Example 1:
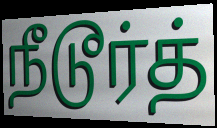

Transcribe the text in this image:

நீடூர்த்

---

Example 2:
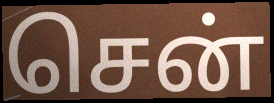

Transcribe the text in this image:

சென்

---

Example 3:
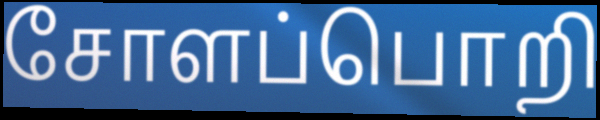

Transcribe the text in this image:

சோளப்பொறி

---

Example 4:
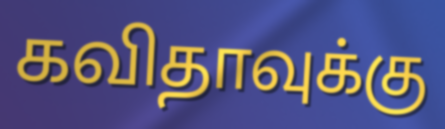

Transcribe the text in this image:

கவிதாவுக்கு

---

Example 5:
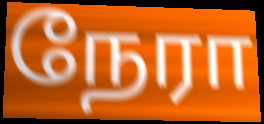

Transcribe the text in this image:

நேரா